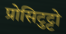
प्रोसिटुट्टो